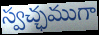
స్వచ్ఛముగా